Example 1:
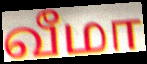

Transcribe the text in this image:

வீமா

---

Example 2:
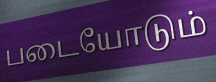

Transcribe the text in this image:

படையோடும்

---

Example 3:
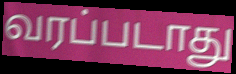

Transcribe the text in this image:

வரப்படாது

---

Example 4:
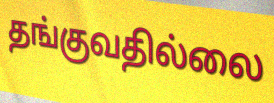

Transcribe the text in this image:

தங்குவதில்லை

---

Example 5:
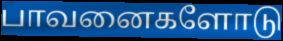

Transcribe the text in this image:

பாவனைகளோடு